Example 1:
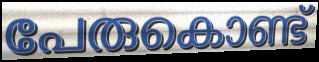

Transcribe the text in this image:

പേരുകൊണ്ട്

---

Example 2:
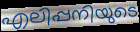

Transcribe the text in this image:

എലിപ്പനിയുടെ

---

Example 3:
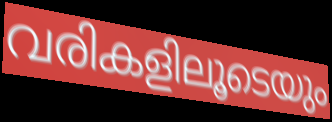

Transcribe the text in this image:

വരികളിലൂടെയും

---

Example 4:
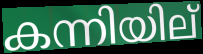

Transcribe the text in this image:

കന്നിയില്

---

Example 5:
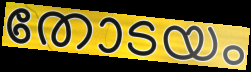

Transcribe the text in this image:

തോടയം